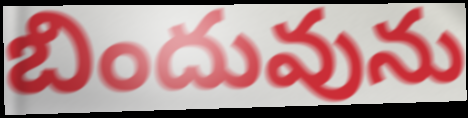
బిందువును